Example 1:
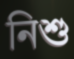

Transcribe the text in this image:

নিশু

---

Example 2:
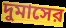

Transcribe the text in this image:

দুমাসের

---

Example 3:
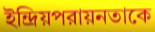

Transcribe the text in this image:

ইন্দ্রিয়পরায়নতাকে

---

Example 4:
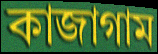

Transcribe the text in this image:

কাজাগাম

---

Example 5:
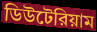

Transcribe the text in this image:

ডিউটেরিয়াম